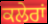
ਕਲੇਰਾਂ